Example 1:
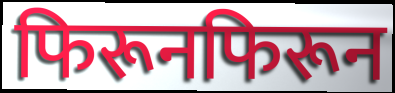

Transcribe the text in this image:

फिरूनफिरून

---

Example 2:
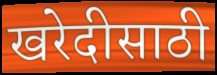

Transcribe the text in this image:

खरेदीसाठी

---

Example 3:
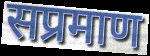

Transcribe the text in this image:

सप्रमाण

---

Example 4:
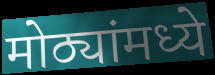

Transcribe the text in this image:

मोठ्यांमध्ये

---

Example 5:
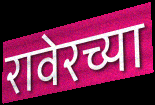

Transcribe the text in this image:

रावेरच्या